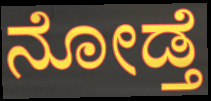
ನೋಡ್ತೆ